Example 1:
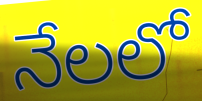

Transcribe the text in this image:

నేలలో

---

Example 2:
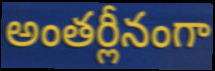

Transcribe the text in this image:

అంతర్లీనంగా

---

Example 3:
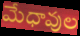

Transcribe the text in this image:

మేధావుల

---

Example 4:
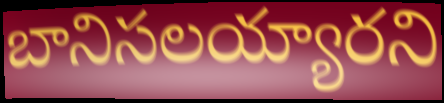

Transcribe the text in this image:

బానిసలయ్యారని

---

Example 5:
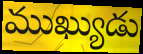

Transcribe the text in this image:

ముఖ్యుడు